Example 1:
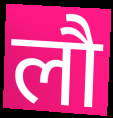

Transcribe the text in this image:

लौ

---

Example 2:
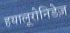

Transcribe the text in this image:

हयालूरोनिडेज़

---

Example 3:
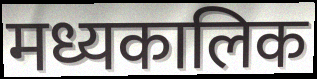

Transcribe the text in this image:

मध्यकालिक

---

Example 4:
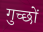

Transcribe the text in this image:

गुच्छों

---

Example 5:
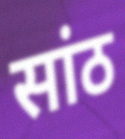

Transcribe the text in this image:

सांठ